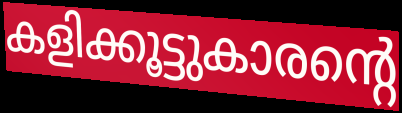
കളിക്കൂട്ടുകാരന്റെ